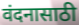
वंदनासाठी